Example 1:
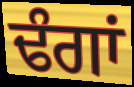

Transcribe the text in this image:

ਢੰਗਾਂ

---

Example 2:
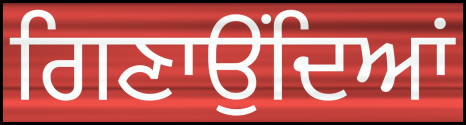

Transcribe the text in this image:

ਗਿਣਾਉਂਦਿਆਂ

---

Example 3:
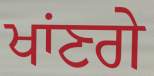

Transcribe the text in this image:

ਖਾਂਣਗੇ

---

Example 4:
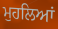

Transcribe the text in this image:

ਮੁਹਲਿਆਂ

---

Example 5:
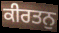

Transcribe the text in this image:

ਕੀਰਤਨੁ